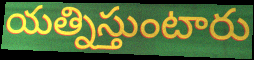
యత్నిస్తుంటారు